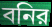
বনির